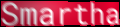
Smartha